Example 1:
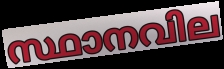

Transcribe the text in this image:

സ്ഥാനവില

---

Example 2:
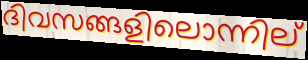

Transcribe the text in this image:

ദിവസങ്ങളിലൊന്നില്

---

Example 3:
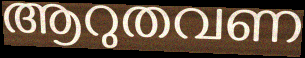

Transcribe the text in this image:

ആറുതവണ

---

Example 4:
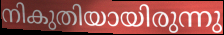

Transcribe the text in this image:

നികുതിയായിരുന്നു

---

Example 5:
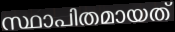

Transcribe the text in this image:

സ്ഥാപിതമായത്